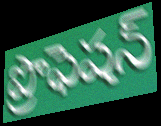
ప్రొఫెషన్